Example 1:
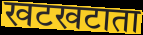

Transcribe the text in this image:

खटखटाता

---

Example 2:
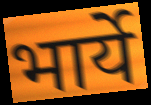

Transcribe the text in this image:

भार्ये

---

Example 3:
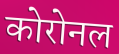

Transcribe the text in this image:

कोरोनल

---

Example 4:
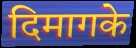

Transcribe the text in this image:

दिमागके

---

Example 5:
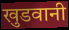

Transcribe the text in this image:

खुडवानी